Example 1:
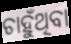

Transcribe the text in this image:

ଚାହୁଁଥିବା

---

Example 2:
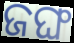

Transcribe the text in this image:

ଜଙ୍ଘ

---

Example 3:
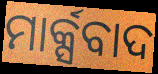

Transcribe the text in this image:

ମାର୍କ୍ସବାଦ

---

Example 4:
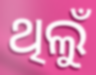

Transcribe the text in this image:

ଥିଲୁଁ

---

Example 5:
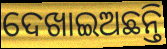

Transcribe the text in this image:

ଦେଖାଇଅଛନ୍ତି